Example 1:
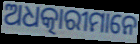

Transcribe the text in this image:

ଅଧତ୍କାରୀମାନେ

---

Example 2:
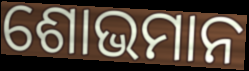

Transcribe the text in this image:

ଶୋଭମାନ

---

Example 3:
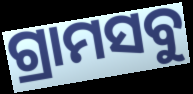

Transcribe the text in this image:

ଗ୍ରାମସବୁ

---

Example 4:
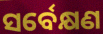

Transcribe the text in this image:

ସର୍ବେକ୍ଷଣ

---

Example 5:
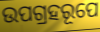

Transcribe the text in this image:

ଉପଗ୍ରହରୂପେ